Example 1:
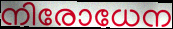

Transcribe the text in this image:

നിരോധേന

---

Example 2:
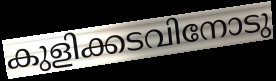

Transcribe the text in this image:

കുളിക്കടവിനോടു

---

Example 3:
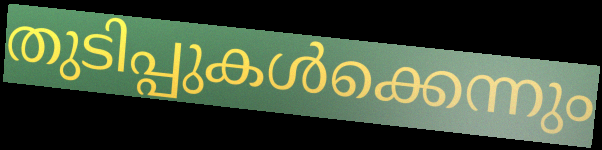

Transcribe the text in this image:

തുടിപ്പുകൾക്കെന്നും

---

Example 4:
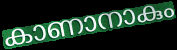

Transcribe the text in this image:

കാണാനാകും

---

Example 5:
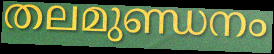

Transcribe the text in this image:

തലമുണ്ഡനം